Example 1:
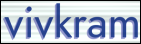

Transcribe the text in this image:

vivkram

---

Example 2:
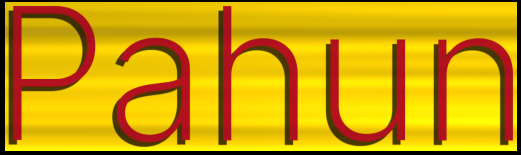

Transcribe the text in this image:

Pahun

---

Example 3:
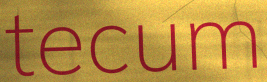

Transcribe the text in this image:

tecum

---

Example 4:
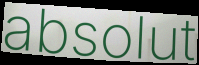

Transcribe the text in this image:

absolut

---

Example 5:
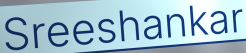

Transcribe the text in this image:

Sreeshankar